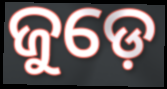
ଜୁଡ଼େ